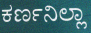
ಕರ್ಣನಿಲ್ಲಾ